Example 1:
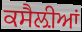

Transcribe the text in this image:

ਕਸੈਲ਼ੀਆਂ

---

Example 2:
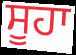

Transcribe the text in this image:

ਸੂਹਾ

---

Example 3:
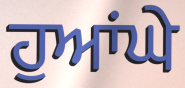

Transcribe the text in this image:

ਹੁਆਂਘੇ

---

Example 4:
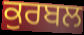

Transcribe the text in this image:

ਕੁਰਬਲ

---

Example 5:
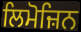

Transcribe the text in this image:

ਲਿਮੋਜ਼ਿਨ